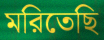
মরিতেছি